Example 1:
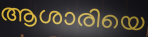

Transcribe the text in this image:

ആശാരിയെ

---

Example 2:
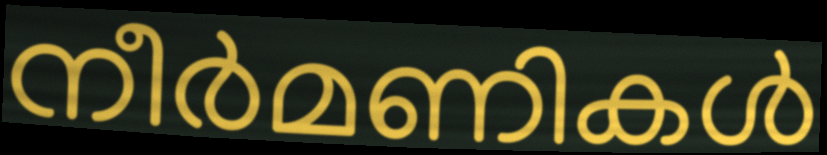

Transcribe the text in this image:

നീർമണികൾ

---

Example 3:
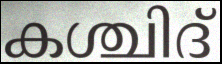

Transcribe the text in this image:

കശ്ചിദ്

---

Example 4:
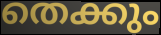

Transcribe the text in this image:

തെക്കും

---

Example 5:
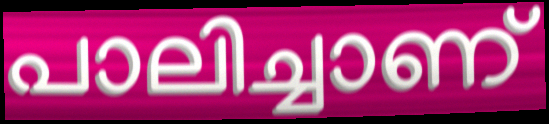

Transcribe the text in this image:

പാലിച്ചാണ്